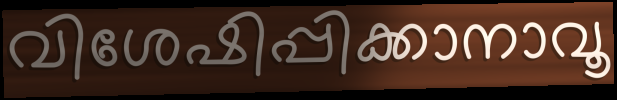
വിശേഷിപ്പിക്കാനാവൂ